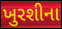
ખુરશીના